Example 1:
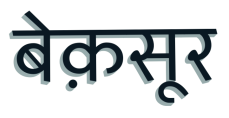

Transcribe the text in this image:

बेक़सूर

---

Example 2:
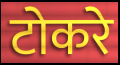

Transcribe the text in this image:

टोकरे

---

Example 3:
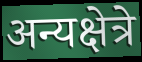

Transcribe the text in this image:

अन्यक्षेत्रे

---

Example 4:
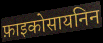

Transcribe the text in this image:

फ़ाइकोसायनिन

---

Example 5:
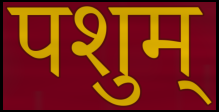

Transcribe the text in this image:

पशुम्